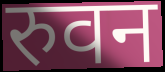
रुवन